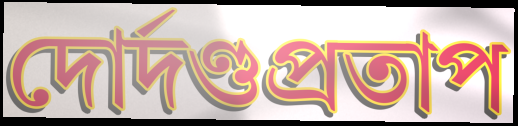
দোর্দণ্ডপ্রতাপ